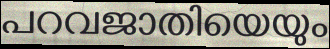
പറവജാതിയെയും